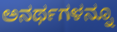
ಅನರ್ಥಗಳನ್ನೂ